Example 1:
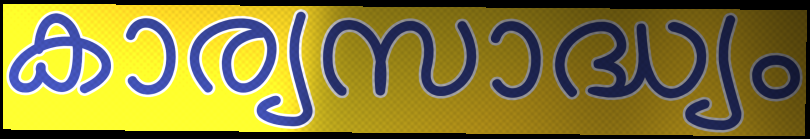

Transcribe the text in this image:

കാര്യസാദ്ധ്യം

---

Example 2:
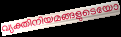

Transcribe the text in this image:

വ്യക്തിനിയമങ്ങളുടെയോ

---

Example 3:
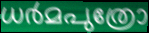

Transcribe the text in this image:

ധർമപുത്രോ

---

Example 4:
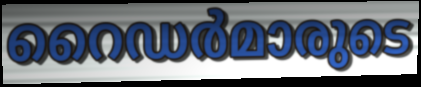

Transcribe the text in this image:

റൈഡർമാരുടെ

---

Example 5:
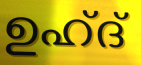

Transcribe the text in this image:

ഉഹ്ദ്